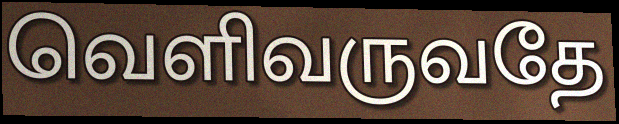
வெளிவருவதே